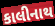
કાલીનાથ